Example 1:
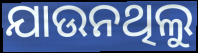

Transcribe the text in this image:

ଯାଉନଥିଲୁ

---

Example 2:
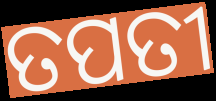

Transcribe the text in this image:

ତପତୀ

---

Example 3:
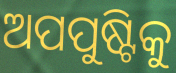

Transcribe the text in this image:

ଅପପୁଷ୍ଟିକୁ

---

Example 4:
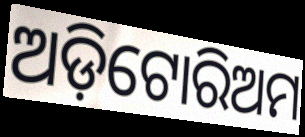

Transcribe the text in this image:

ଅଡ଼ିଟୋରିଅମ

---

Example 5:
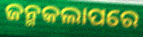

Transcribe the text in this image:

ଜନ୍ମକଲାପରେ